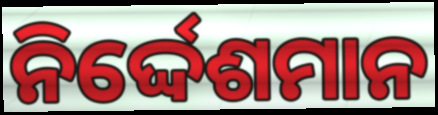
ନିର୍ଦ୍ଦେଶମାନ